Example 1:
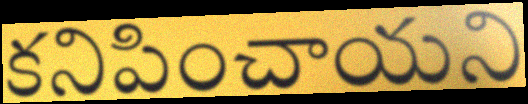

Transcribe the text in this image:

కనిపించాయని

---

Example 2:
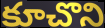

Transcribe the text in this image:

కూచొని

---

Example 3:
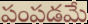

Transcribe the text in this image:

పంపడమే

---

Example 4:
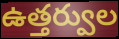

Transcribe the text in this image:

ఉత్తర్వుల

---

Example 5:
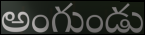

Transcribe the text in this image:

అంగుండు